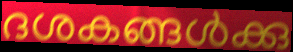
ദശകങ്ങൾക്കു